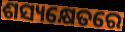
ଶସ୍ୟକ୍ଷେତରେ